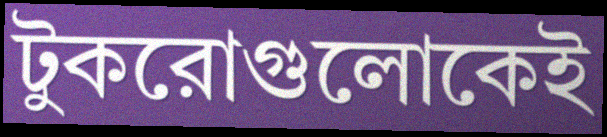
টুকরোগুলোকেই